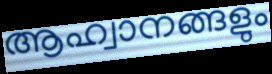
ആഹ്വാനങ്ങളും